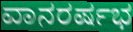
ವಾನರರ್ಷಭ